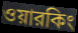
ওয়ারকিং